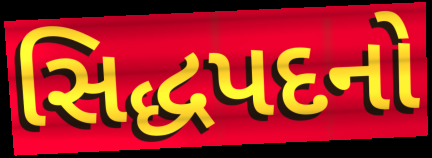
સિદ્ધપદનો